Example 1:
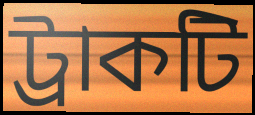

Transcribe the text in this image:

ট্রাকটি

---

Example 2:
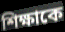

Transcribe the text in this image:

শিক্ষাকে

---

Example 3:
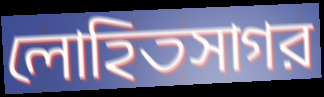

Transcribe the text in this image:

লোহিতসাগর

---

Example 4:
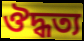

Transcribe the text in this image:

ঔদ্ধত্য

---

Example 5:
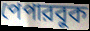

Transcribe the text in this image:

পেপারবুক